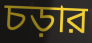
চড়ার